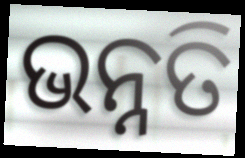
ଭନ୍ନତି